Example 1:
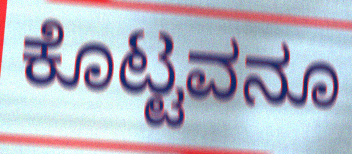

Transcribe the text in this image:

ಕೊಟ್ಟವನೂ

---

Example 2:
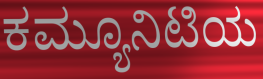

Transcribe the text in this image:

ಕಮ್ಯೂನಿಟಿಯ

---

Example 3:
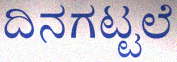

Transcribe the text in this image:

ದಿನಗಟ್ಟಲೆ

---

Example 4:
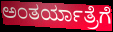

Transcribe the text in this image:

ಅಂತರ್ಯಾತ್ರೆಗೆ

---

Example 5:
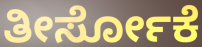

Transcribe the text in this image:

ತೀರ್ಸೋಕೆ